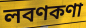
লবণকণা